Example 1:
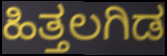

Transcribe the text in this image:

ಹಿತ್ತಲಗಿಡ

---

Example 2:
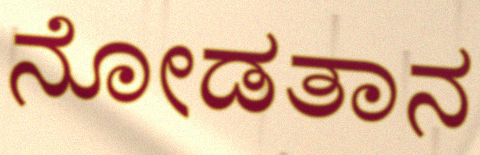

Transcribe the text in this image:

ನೋಡತಾನ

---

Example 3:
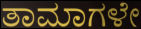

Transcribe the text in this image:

ತಾಮಾಗಳೇ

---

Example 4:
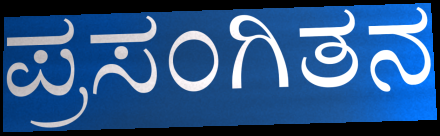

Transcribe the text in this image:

ಪ್ರಸಂಗಿತನ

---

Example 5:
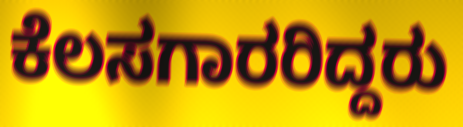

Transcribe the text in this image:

ಕೆಲಸಗಾರರಿದ್ದರು